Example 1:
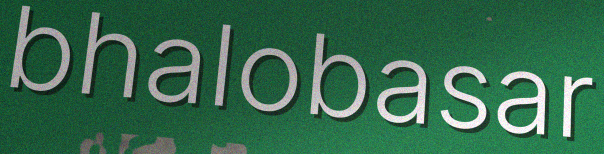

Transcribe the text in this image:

bhalobasar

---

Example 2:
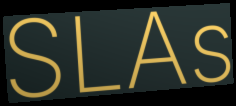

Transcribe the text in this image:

SLAs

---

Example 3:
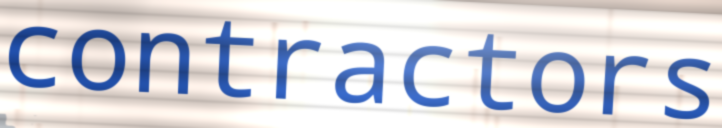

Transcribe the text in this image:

contractors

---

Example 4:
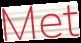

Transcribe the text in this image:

Met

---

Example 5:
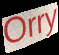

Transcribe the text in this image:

Orry